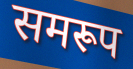
समरूप